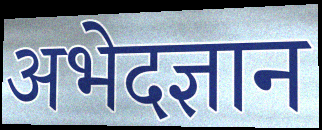
अभेदज्ञान